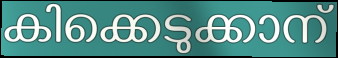
കിക്കെടുക്കാന്